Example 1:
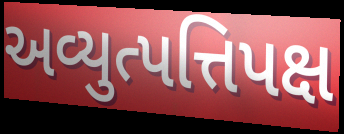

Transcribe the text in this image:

અવ્યુત્પત્તિપક્ષ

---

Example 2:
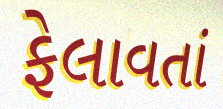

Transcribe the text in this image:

ફેલાવતાં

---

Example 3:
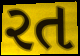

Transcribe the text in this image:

રત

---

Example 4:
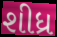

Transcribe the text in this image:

શીધ્ર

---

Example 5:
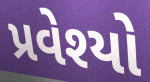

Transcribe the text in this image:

પ્રવેશ્યો